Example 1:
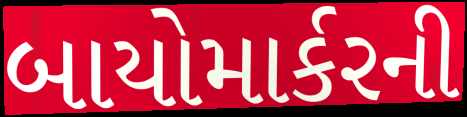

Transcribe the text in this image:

બાયોમાર્કરની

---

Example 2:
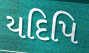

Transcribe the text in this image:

યદિપિ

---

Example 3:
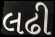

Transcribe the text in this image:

લઢી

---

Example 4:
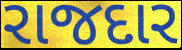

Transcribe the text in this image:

રાજદાર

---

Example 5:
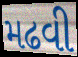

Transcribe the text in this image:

મઢવી